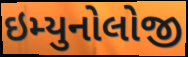
ઇમ્યુનોલોજી